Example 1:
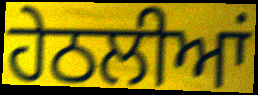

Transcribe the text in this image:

ਹੇਠਲੀਆਂ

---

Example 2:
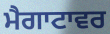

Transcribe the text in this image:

ਮੈਗਾਟਾਵਰ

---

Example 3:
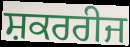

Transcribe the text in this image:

ਸ਼ਕਰਰੀਜ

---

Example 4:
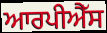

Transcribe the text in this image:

ਆਰਪੀਐੱਸ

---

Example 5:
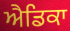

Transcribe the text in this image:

ਐਡਿਕਾ